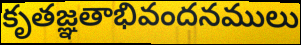
కృతజ్ఞతాభివందనములు